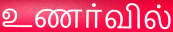
உணர்வில்